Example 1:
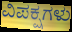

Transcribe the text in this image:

ವಿಪಕ್ಷಗಳು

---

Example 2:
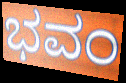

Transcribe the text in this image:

ಭವಂ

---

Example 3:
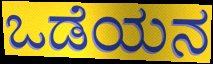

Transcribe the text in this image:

ಒಡೆಯನ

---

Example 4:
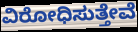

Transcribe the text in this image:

ವಿರೋಧಿಸುತ್ತೇವೆ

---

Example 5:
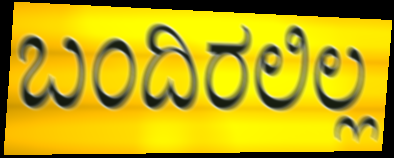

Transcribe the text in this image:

ಬಂದಿರಲಿಲ್ಲ